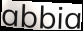
abbia